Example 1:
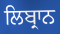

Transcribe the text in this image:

ਲਿਬ੍ਰਾਨ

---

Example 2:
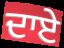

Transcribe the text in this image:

ਦਾਏ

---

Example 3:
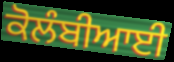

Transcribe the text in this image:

ਕੋਲੰਬੀਆਈ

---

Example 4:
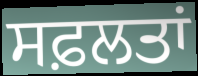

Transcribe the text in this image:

ਸਫ਼ਲਤਾਂ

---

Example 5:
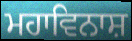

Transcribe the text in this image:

ਮਹਾਵਿਨਾਸ਼